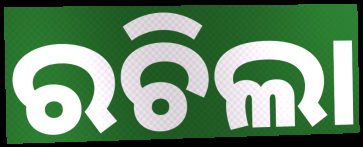
ରଚିଲା